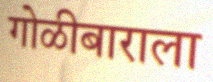
गोळीबाराला